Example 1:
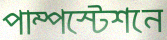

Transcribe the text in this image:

পাম্পস্টেশনে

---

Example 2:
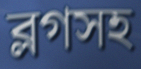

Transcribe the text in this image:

ব্লগসহ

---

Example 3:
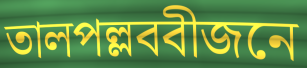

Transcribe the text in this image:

তালপল্লববীজনে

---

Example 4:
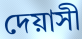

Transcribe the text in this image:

দেয়াসী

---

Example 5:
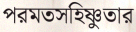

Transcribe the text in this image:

পরমতসহিষ্ণুতার